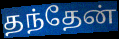
தந்தேன்